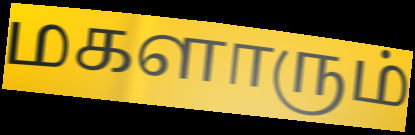
மகளாரும்